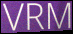
VRM